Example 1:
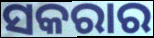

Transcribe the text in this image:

ସକରାର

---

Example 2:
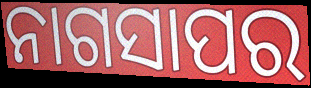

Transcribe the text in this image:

ନାଗସାପର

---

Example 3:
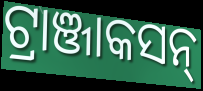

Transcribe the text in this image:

ଟ୍ରାଞ୍ଜାକସନ୍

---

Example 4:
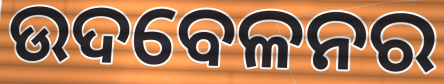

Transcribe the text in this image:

ଉଦବେଳନର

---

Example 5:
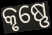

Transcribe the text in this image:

କୃଷ୍ଣେ